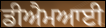
ਡੀਐਮਆਈ